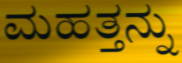
ಮಹತ್ತನ್ನು